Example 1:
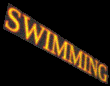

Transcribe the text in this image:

SWIMMING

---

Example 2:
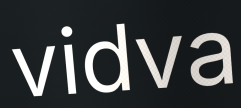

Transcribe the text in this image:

vidva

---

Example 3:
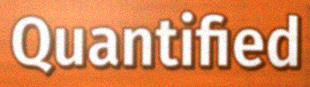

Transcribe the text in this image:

Quantified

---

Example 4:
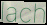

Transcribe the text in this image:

lach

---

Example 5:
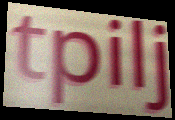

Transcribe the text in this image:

tpilj